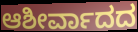
ಆಶೀರ್ವಾದದ